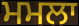
ਮਮਲਾ